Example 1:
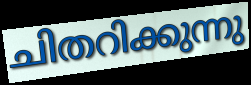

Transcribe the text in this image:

ചിതറിക്കുന്നു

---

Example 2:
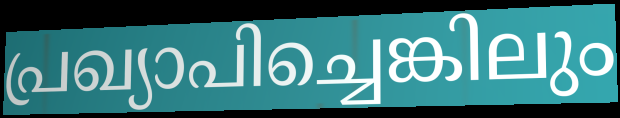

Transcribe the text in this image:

പ്രഖ്യാപിച്ചെങ്കിലും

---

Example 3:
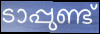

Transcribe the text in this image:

ടാപ്പുണ്ട്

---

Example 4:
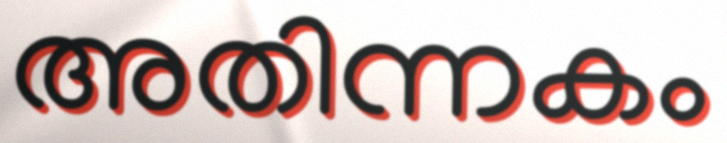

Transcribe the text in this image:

അതിന്നകം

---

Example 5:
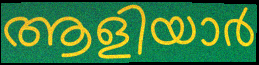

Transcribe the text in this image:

ആളിയാർ